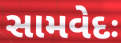
સામવેદઃ